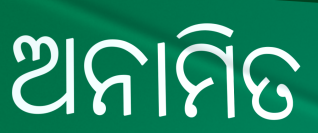
ଅନାମିତ